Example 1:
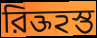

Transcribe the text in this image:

রিক্তহস্ত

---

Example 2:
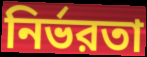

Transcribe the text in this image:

নির্ভরতা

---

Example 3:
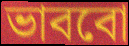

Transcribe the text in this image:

ভাববো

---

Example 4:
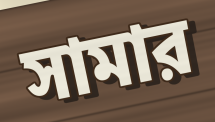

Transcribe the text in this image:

সামার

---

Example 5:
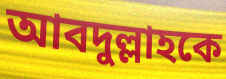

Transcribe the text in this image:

আবদুল্লাহকে